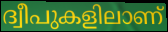
ദ്വീപുകളിലാണ്